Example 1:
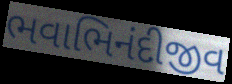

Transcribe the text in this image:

ભવાભિનંદીજીવ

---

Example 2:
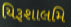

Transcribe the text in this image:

યિરૂશાલમિ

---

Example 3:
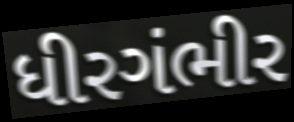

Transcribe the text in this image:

ધીરગંભીર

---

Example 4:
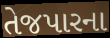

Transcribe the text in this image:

તેજપારના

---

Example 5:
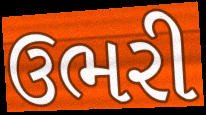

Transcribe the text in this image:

ઉભરી